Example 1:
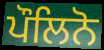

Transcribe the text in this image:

ਪੌਲਿਨੋ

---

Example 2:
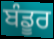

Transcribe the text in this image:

ਬੰਡੂਰ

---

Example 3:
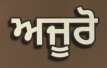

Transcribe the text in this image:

ਅਜੂਰੋ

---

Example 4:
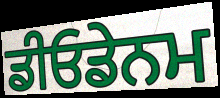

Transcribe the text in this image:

ਡੀਓਡੇਨਮ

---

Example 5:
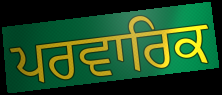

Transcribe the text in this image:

ਪਰਵਾਰਿਕ